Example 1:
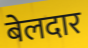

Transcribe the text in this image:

बेलदार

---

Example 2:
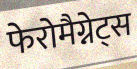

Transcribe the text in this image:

फेरोमैग्नेट्स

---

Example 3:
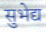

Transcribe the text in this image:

सुभेद्य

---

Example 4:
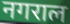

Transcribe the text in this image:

नगराल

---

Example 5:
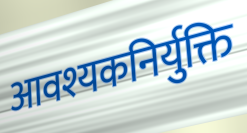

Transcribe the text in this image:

आवश्यकनिर्युक्ति